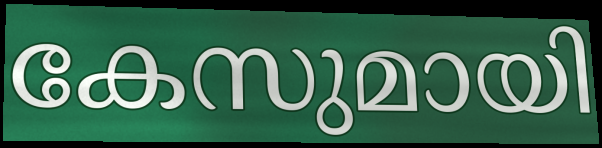
കേസുമായി